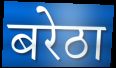
बरेठा